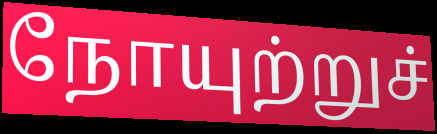
நோயுற்றுச்